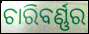
ଚାରିବର୍ଣ୍ଣର